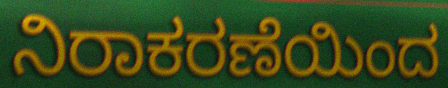
ನಿರಾಕರಣೆಯಿಂದ